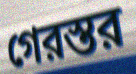
গেরস্তর